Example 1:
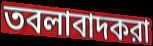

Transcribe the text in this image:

তবলাবাদকরা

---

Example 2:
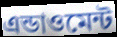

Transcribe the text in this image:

এন্ডাওমেন্ট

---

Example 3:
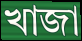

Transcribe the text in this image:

খাজা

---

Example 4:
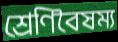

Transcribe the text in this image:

শ্রেণিবৈষম্য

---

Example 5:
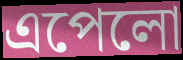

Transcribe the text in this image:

এপেলো